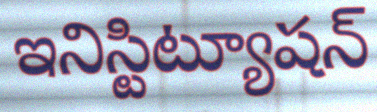
ఇనిస్టిట్యూషన్